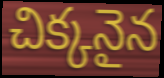
చిక్కనైన